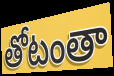
తోటంతా